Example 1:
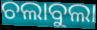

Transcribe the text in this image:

ଚଲାବୁଲା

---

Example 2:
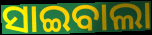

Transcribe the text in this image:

ସାଇବାଲା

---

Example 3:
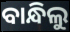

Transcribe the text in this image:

ବାନ୍ଧିଲୁ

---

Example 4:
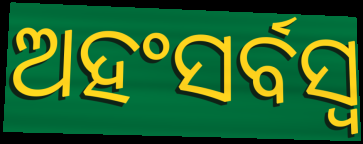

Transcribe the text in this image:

ଅହଂସର୍ବସ୍ୱ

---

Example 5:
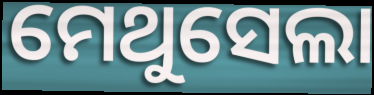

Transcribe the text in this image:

ମେଥୁସେଲା